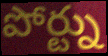
పోర్ట్ను